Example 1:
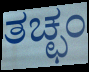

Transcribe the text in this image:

ತಚ್ಛಂ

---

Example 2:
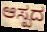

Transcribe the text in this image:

ಆಸ್ಪದ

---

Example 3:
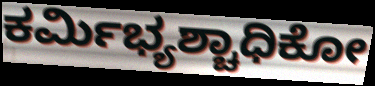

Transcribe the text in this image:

ಕರ್ಮಿಭ್ಯಶ್ಚಾಧಿಕೋ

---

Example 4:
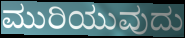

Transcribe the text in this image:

ಮುರಿಯುವುದು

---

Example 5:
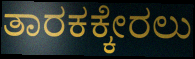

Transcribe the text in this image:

ತಾರಕಕ್ಕೇರಲು